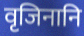
वृजिनानि